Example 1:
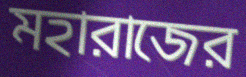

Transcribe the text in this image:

মহারাজের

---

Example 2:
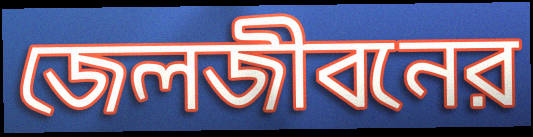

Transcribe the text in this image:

জেলজীবনের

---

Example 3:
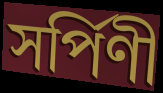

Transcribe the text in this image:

সর্পিণী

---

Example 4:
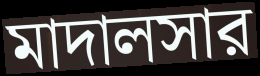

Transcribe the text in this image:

মাদালসার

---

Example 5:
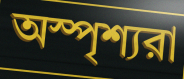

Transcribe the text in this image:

অস্পৃশ্যরা